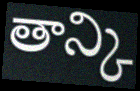
తాన్కి